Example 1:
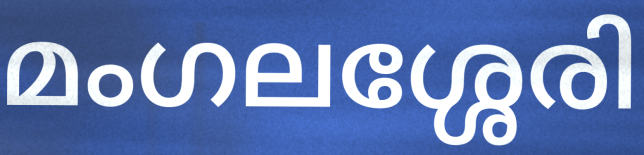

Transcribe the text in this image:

മംഗലശ്ശേരി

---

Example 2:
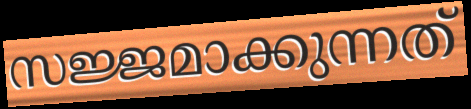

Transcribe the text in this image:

സജ്ജമാക്കുന്നത്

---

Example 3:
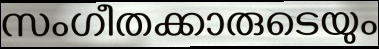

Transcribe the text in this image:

സംഗീതക്കാരുടെയും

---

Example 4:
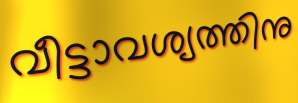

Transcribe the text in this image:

വീട്ടാവശ്യത്തിനു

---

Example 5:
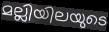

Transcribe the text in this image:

മല്ലിയിലയുടെ